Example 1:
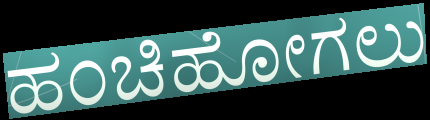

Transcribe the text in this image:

ಹಂಚಿಹೋಗಲು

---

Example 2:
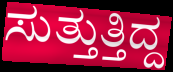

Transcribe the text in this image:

ಸುತ್ತುತ್ತಿದ್ದ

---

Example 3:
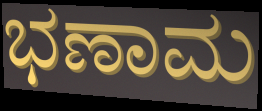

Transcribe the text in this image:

ಭಣಾಮ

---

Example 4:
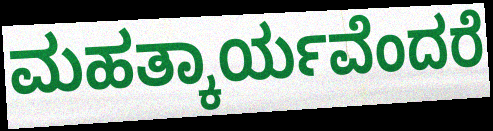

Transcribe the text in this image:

ಮಹತ್ಕಾರ್ಯವೆಂದರೆ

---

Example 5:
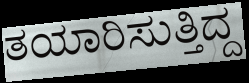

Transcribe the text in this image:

ತಯಾರಿಸುತ್ತಿದ್ದ